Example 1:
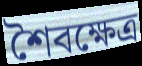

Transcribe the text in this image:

শৈবক্ষেত্র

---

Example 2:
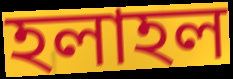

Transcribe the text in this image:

হলাহল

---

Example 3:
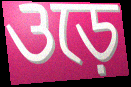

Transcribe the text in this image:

ওড়ে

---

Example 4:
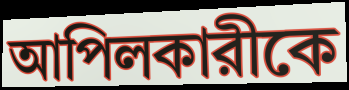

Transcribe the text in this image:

আপিলকারীকে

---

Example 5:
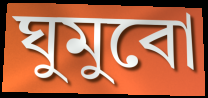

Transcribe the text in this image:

ঘুমুবো